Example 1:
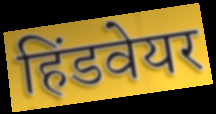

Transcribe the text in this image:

हिंडवेयर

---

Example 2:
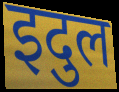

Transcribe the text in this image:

इदुल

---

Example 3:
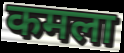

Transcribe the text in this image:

कमला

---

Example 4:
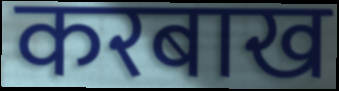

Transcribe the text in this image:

करबाख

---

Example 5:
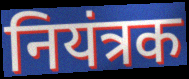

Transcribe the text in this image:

नियंत्रक